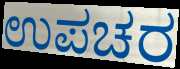
ಉಪಚರ